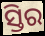
ସ୍ତିର